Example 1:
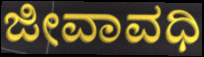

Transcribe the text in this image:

ಜೀವಾವಧಿ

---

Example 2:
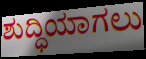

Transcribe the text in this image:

ಶುದ್ಧಿಯಾಗಲು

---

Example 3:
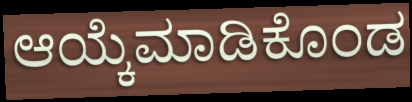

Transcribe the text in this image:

ಆಯ್ಕೆಮಾಡಿಕೊಂಡ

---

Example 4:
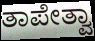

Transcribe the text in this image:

ತಾಪೇತ್ವಾ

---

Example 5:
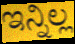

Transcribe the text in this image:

ಇನ್ನಿಲ್ಲ